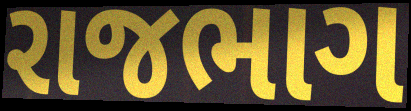
રાજભાગ